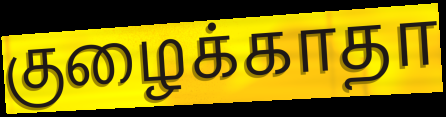
குழைக்காதா